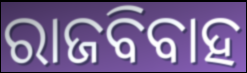
ରାଜବିବାହ